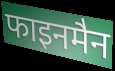
फाइनमैन